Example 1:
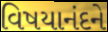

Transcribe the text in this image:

વિષયાનંદને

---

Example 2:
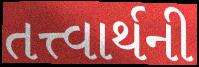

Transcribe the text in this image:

તત્ત્વાર્થની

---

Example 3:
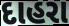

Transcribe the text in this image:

દાહરા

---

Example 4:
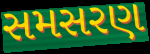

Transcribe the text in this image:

સમસરણ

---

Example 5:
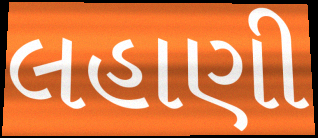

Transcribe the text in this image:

લહાણી